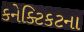
કનેક્ટિકટના